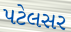
પટેલસર